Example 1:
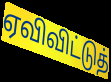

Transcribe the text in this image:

ஏவிவிட்டுத்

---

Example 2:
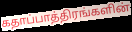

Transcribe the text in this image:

கதாப்பாத்திரங்களின்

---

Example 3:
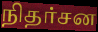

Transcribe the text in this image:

நிதர்சன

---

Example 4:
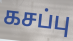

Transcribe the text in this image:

கசப்பு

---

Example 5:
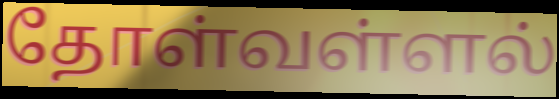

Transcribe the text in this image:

தோள்வள்ளல்